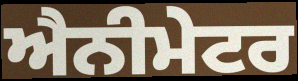
ਐਨੀਮੇਟਰ